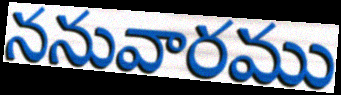
ననువారము